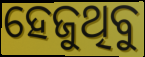
ହେଜୁଥିବୁ